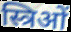
स्त्रिओं